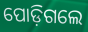
ପୋଡ଼ିଗଲେ